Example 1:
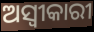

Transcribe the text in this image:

ଅସ୍ୱୀକାରୀ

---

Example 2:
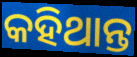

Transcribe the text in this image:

କହିଥାନ୍ତ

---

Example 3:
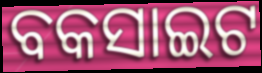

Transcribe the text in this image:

ବକସାଇଟ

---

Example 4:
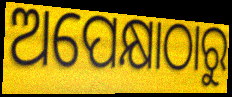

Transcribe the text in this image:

ଅପେକ୍ଷାଠାରୁ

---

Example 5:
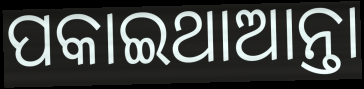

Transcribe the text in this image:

ପକାଇଥାଆନ୍ତା